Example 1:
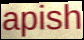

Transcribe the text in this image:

apish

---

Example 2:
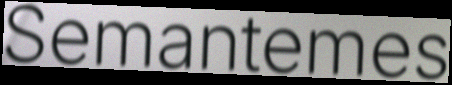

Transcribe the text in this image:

Semantemes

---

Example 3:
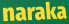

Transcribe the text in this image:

naraka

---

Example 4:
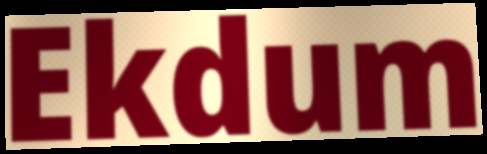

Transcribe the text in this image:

Ekdum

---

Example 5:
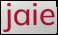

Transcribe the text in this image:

jaie